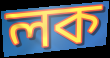
লক